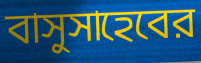
বাসুসাহেবের